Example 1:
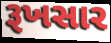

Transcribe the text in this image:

રૂખસાર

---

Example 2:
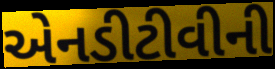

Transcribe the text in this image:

એનડીટીવીની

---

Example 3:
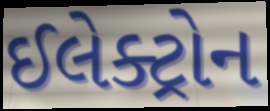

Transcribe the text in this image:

ઈલેક્ટ્રોન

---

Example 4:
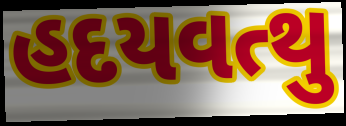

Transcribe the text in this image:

હદયવત્થુ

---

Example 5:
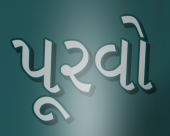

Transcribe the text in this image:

પૂરવો